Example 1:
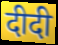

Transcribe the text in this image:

दीदी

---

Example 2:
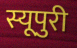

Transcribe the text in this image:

स्यूपुरी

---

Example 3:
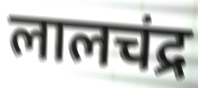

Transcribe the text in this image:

लालचंद्र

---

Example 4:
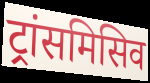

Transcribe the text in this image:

ट्रांसमिसिव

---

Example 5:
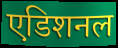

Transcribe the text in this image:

एडिशनल